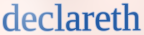
declareth